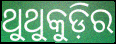
ଥୁଥୁକୁଡ଼ିର